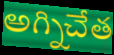
అగ్నిచేత